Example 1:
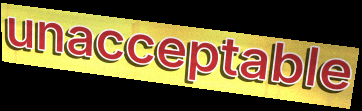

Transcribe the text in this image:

unacceptable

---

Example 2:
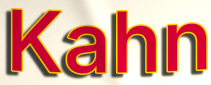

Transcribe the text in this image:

Kahn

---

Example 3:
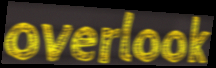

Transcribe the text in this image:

overlook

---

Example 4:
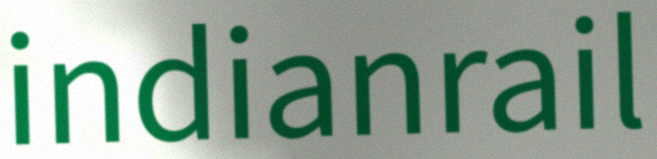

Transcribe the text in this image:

indianrail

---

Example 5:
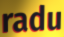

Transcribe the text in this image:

radu